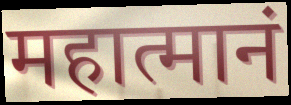
महात्मानं